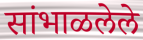
सांभाळलेले